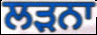
ਲੜਨਾ